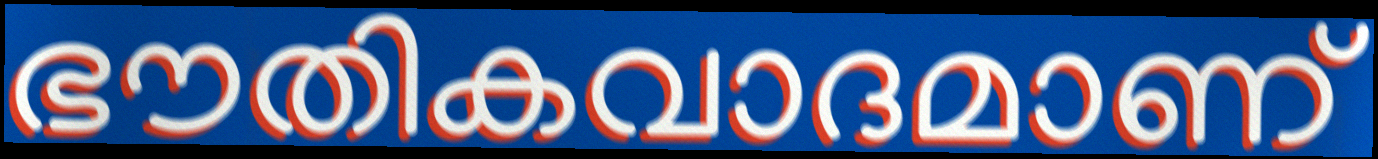
ഭൗതികവാദമാണ്